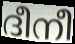
ദീനീ